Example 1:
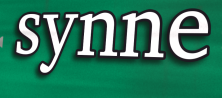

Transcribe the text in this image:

synne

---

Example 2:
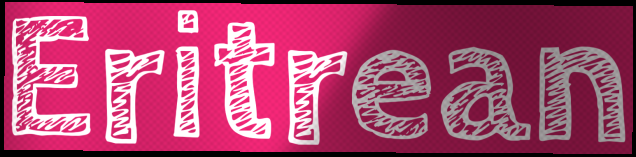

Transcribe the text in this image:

Eritrean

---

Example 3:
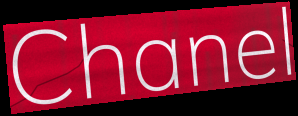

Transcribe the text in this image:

Chanel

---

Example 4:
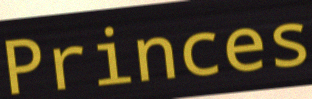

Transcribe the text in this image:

Princes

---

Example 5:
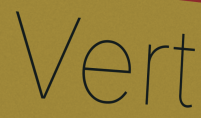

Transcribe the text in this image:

Vert